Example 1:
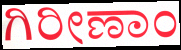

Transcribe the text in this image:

ಗಿರೀಣಾಂ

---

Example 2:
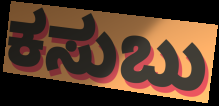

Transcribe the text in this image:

ಕಸುಬು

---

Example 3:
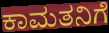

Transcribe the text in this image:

ಕಾಮತನಿಗೆ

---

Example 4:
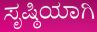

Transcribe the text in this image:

ಸೃಷ್ಠಿಯಾಗಿ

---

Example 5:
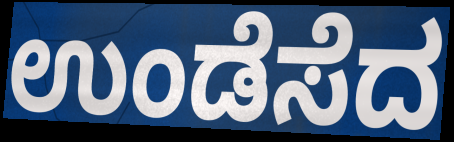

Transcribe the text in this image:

ಉಂಡೆಸೆದ